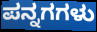
ಪನ್ನಗಗಳು